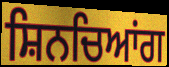
ਸ਼ਿਨਚਿਆਂਗ